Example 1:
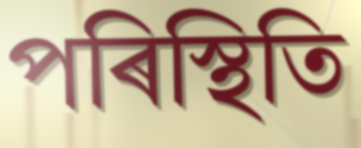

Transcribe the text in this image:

পৰিস্থিতি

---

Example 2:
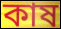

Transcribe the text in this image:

কাষ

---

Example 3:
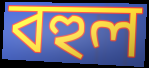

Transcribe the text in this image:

বহুল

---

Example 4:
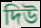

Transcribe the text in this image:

দিউ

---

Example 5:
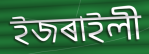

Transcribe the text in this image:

ইজৰাইলী